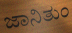
ಜಾನಿತುಂ